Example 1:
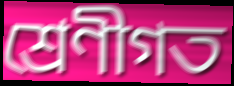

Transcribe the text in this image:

শ্রেণীগত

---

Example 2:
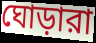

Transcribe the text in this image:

ঘোড়ারা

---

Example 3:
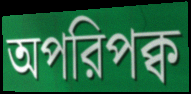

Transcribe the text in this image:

অপরিপক্ব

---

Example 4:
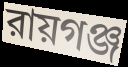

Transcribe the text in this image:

রায়গঞ্জ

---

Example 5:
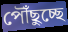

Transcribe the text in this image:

পৌঁছুচ্ছে